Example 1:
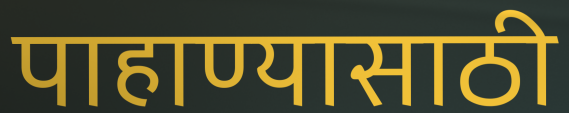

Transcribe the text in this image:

पाहाण्यासाठी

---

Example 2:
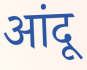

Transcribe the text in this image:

आंदू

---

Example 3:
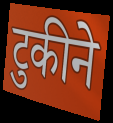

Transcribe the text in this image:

टुकीने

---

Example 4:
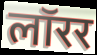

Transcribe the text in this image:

लॉरर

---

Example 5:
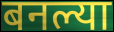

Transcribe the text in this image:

बनल्या